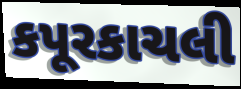
કપૂરકાચલી